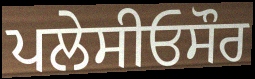
ਪਲੇਸੀਓਸੌਰ